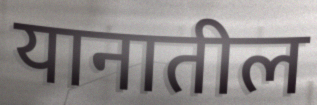
यानातील